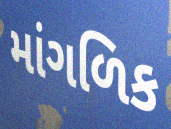
માંગળિક